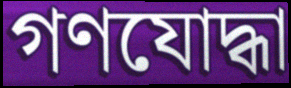
গণযোদ্ধা